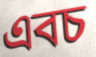
এবচ